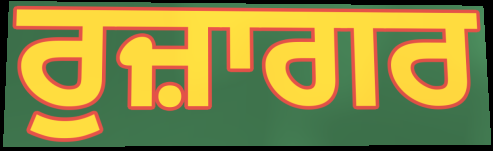
ਰੁਜ਼ਾਗਰ